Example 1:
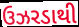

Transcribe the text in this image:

ઉઝરડાથી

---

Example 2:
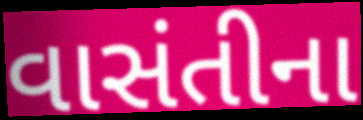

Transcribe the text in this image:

વાસંતીના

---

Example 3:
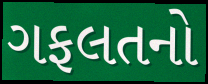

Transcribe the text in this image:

ગફલતનો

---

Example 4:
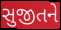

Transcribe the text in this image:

સુજીતને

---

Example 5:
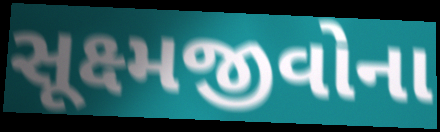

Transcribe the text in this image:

સૂક્ષ્મજીવોના